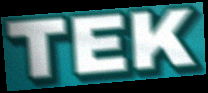
TEK